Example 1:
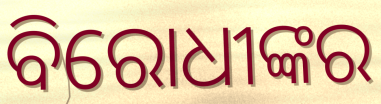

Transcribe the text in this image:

ବିରୋଧୀଙ୍କର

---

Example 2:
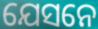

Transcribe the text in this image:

ଯେସନେ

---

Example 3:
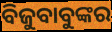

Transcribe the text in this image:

ବିଜୁବାବୁଙ୍କର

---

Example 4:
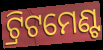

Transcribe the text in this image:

ଟ୍ରିଟମେଣ୍ଟ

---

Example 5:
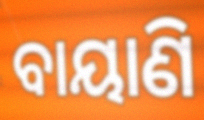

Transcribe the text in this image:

ବାୟାଣି